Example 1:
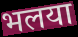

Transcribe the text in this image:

भलया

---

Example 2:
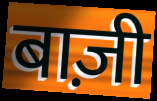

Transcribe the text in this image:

बाज़ी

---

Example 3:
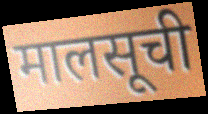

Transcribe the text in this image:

मालसूची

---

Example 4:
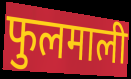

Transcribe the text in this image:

फुलमाली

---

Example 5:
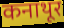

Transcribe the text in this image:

कनाथूर